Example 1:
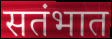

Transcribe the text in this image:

सतंभात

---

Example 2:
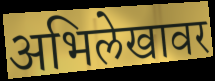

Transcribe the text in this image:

अभिलेखावर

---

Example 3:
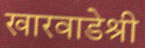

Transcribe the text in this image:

खारवाडेश्री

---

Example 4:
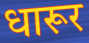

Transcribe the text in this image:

धारूर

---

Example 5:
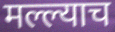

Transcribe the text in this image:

मल्ल्याच